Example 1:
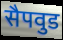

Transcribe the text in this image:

सैपवुड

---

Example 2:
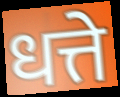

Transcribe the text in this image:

धत्ते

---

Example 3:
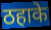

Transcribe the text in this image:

ठहाके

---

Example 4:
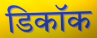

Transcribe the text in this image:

डिकॉक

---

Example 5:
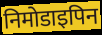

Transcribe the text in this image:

निमोडाइपिन